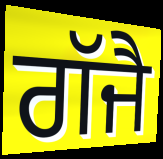
ਗੱਜੈ